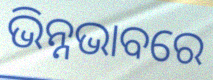
ଭିନ୍ନଭାବରେ